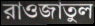
রাওজাতুল